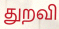
துறவி